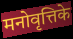
मनोवृत्तिके